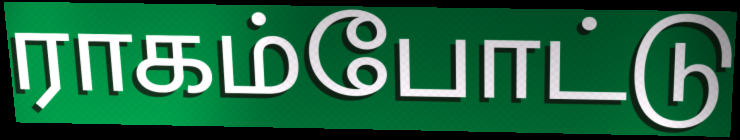
ராகம்போட்டு